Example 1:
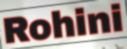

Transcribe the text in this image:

Rohini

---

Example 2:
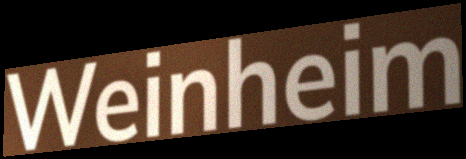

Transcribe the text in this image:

Weinheim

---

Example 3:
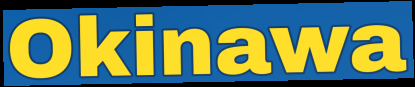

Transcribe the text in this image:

Okinawa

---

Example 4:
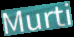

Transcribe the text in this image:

Murti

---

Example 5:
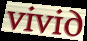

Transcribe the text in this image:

vivid